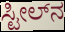
ಸ್ಟೀಲ್‌ನ